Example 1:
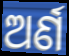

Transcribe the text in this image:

ଅର୍ଣ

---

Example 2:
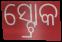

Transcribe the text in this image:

ସ୍ଟ୍ରୋକ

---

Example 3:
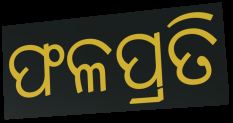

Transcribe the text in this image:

ଫଳପ୍ରତି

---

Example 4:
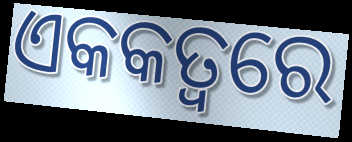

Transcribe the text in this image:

ଏକକତ୍ୱରେ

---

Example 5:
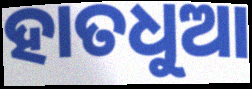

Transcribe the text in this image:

ହାତଧୁଆ